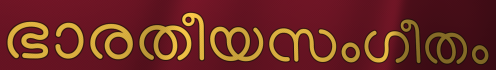
ഭാരതീയസംഗീതം